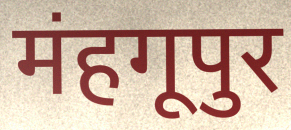
मंहगूपुर